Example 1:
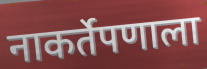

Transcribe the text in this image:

नाकर्तेपणाला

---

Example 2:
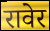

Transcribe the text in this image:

रावेर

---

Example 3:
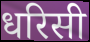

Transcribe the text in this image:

धरिसी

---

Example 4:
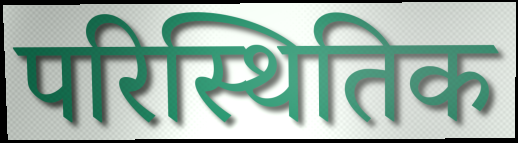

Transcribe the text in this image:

परिस्थितिक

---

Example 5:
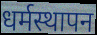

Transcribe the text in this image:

धर्मस्थापन